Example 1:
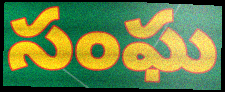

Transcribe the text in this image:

సంఘ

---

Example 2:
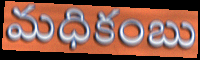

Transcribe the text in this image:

మధికంబు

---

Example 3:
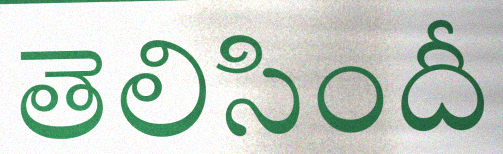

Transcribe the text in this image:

తెలిసిందీ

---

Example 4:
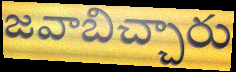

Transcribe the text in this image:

జవాబిచ్చారు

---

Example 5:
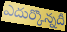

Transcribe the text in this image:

ఎదుర్కొన్నదీ